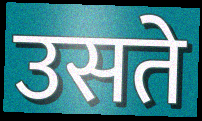
उसते